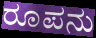
ರೂಪನು